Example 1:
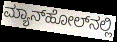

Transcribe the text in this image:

ಮ್ಯಾನ್‌ಹೋಲ್‌ನಲ್ಲಿ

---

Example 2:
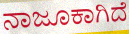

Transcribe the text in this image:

ನಾಜೂಕಾಗಿದೆ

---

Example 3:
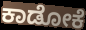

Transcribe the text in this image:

ಕಾಡೋಕೆ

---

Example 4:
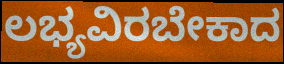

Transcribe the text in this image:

ಲಭ್ಯವಿರಬೇಕಾದ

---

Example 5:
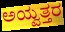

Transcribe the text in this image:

ಅಯ್ವತ್ತರ